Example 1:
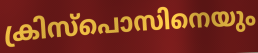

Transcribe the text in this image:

ക്രിസ്പൊസിനെയും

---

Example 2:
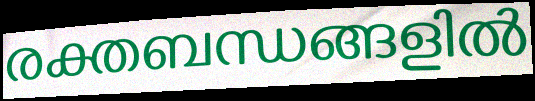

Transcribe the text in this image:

രക്തബന്ധങ്ങളിൽ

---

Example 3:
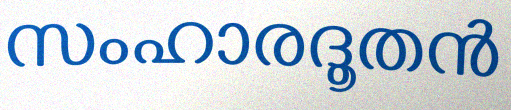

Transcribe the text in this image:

സംഹാരദൂതൻ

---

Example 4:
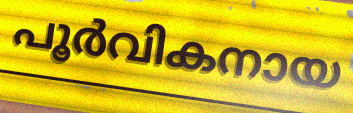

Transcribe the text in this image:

പൂർവികനായ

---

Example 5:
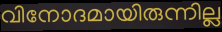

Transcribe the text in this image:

വിനോദമായിരുന്നില്ല